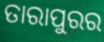
ତାରାପୁରର